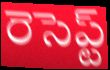
రెసెప్ట్